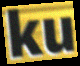
ku